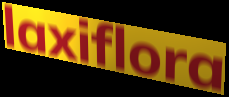
laxiflora